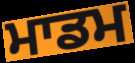
ਮਾਡਮ